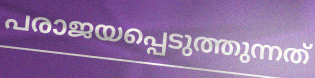
പരാജയപ്പെടുത്തുന്നത്